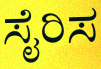
ಸೈರಿಸ